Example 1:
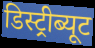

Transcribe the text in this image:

डिस्ट्रीब्यूट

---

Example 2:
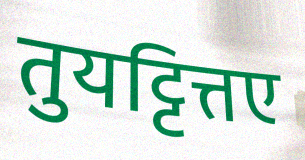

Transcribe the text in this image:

तुयट्टित्तए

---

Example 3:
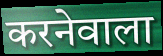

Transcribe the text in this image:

करनेवाला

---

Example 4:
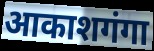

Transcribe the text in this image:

आकाशगंगा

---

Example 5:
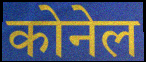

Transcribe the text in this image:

कोनेल